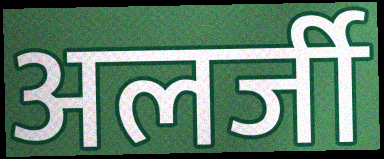
अलर्जी